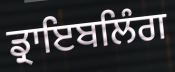
ਡ੍ਰਾਇਬਲਿੰਗ